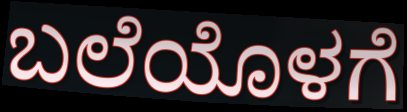
ಬಲೆಯೊಳಗೆ